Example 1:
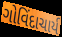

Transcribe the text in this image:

ગોવિંદાચાર્ય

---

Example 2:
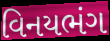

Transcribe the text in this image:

વિનયભંગ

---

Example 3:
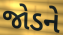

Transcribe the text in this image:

જોડને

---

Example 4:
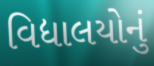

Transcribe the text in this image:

વિદ્યાલયોનું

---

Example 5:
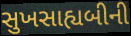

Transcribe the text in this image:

સુખસાહ્યબીની